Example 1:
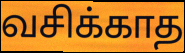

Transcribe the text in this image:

வசிக்காத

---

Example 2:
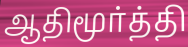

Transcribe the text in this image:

ஆதிமூர்த்தி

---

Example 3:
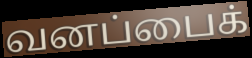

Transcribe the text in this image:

வனப்பைக்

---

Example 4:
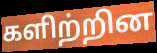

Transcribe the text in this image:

களிற்றின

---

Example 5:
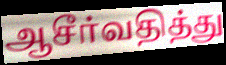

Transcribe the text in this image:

ஆசீர்வதித்து